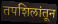
तपशिलांतून